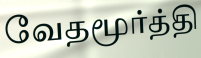
வேதமூர்த்தி